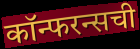
कॉन्फरन्सची